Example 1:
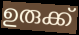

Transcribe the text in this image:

ഉരുക്ക്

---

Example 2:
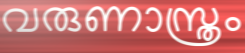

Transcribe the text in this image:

വരുണാസ്ത്രം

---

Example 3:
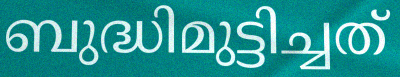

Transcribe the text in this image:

ബുദ്ധിമുട്ടിച്ചത്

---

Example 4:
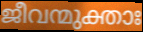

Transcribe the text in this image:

ജീവന്മുക്താഃ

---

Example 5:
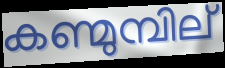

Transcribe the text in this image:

കണ്മുമ്പില്